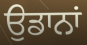
ਉਡਾਨਾਂ